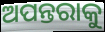
ଅପନ୍ତରାକୁ